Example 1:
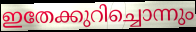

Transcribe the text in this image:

ഇതേക്കുറിച്ചൊന്നും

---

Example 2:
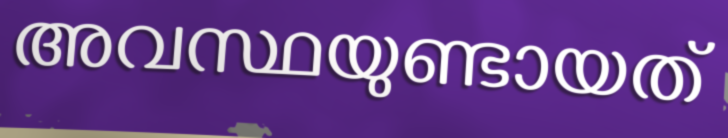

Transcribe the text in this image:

അവസ്ഥയുണ്ടായത്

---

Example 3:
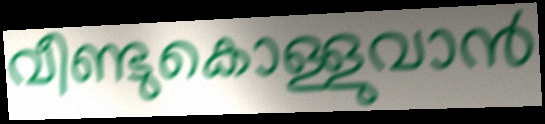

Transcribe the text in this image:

വീണ്ടുകൊള്ളുവാൻ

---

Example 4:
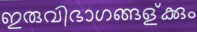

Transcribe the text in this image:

ഇരുവിഭാഗങ്ങള്ക്കും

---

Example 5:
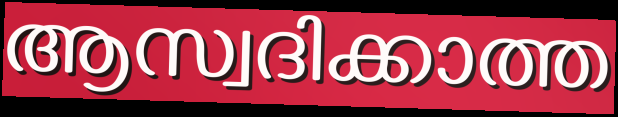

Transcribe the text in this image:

ആസ്വദിക്കാത്ത